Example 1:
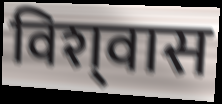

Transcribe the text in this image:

विश्वास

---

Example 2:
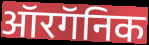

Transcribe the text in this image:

ऑरगॅनिक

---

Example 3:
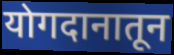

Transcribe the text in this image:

योगदानातून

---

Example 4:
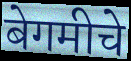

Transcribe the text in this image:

बेगमीचे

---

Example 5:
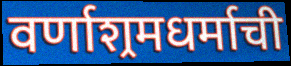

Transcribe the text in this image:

वर्णाश्रमधर्माची